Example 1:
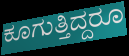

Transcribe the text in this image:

ಕೂಗುತ್ತಿದ್ದರೂ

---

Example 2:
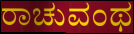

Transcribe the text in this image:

ರಾಚುವಂಥ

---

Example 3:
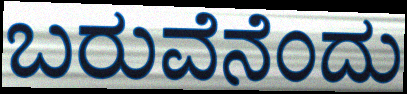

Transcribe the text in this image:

ಬರುವೆನೆಂದು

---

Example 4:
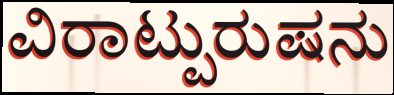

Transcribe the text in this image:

ವಿರಾಟ್ಪುರುಷನು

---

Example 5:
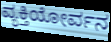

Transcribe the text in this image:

ವ್ಯಕ್ತಿಯೋರ್ವನ